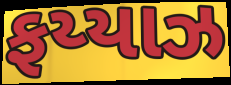
ફય્યાઝ